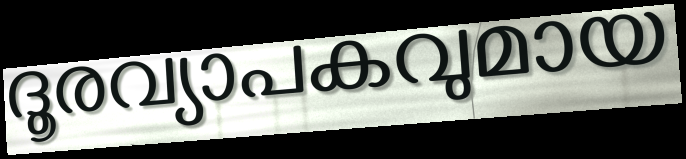
ദൂരവ്യാപകവുമായ